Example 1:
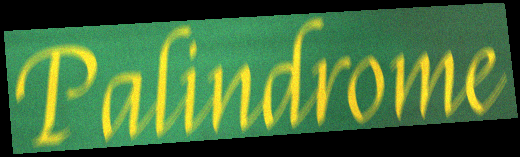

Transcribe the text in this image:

Palindrome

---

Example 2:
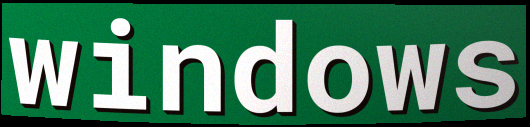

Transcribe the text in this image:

windows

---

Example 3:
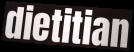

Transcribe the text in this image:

dietitian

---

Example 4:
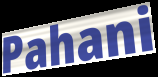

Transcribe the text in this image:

Pahani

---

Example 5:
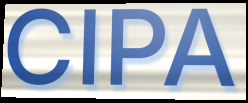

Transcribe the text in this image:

CIPA